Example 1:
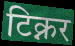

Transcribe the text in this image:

टिक्नर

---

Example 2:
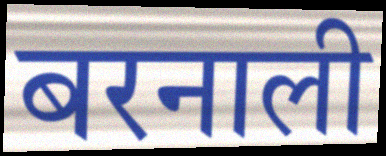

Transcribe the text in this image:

बरनाली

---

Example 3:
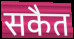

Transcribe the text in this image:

सकैत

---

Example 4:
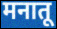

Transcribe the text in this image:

मनातू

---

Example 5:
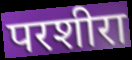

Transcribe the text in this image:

परशीरा